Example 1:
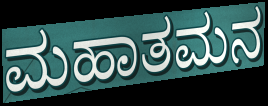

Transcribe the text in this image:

ಮಹಾತಮನ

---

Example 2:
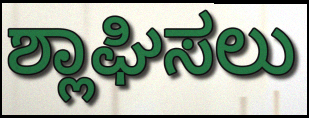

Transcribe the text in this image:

ಶ್ಲಾಘಿಸಲು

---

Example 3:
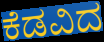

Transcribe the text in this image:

ಕೆಡವಿದ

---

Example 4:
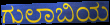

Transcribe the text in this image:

ಗುಲಾಬಿಯ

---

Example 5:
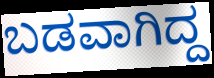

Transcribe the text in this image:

ಬಡವಾಗಿದ್ದ